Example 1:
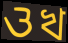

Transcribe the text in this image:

ওখ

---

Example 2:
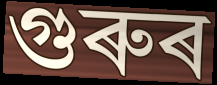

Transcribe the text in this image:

গুৰুৰ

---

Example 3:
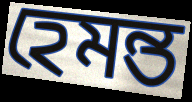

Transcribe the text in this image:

হেমন্ত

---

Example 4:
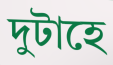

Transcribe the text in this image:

দুটাহে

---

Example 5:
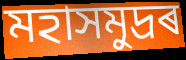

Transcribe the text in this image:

মহাসমুদ্ৰৰ